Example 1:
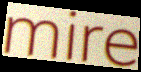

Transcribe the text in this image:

mire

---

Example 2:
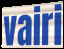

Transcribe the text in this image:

vairi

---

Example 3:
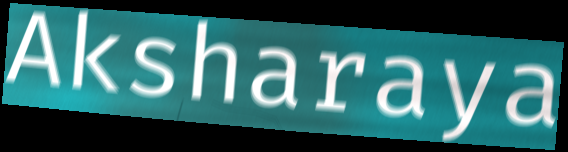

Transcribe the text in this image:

Aksharaya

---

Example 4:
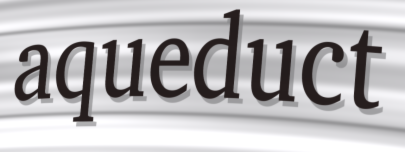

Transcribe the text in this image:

aqueduct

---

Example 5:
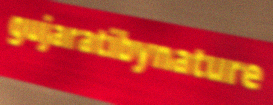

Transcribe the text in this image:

gujaratibynature